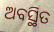
ଅବସ୍ଥିତ